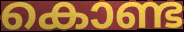
കൊണ്ട